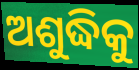
ଅଶୁଦ୍ଧିକୁ